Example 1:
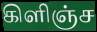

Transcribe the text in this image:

கிளிஞ்ச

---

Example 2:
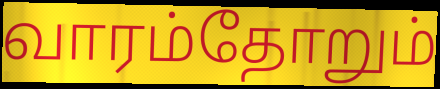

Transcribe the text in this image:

வாரம்தோறும்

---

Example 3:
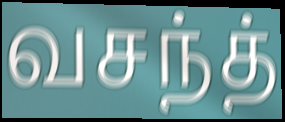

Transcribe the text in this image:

வசந்த்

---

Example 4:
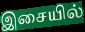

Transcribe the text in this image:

இசையில்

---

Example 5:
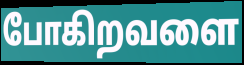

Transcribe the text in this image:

போகிறவளை